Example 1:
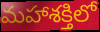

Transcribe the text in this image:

మహాశక్తిలో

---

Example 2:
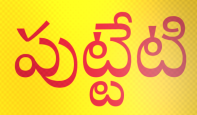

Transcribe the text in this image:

పుట్టేటి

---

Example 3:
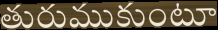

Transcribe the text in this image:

తురుముకుంటూ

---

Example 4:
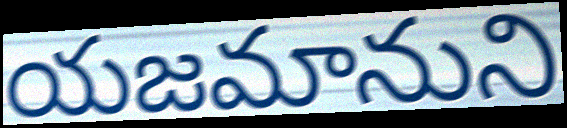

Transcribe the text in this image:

యజమానుని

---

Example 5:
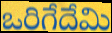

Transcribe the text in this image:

ఒరిగేదేమి